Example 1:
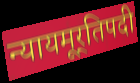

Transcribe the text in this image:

न्यायमूर्तिपदी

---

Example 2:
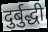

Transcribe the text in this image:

दुर्बुद्धी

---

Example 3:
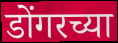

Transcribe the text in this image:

डोंगरच्या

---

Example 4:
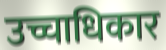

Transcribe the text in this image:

उच्चाधिकार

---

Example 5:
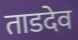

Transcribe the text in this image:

ताडदेव